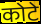
कोटे